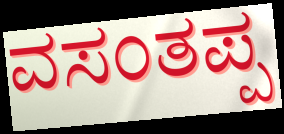
ವಸಂತಪ್ಪ